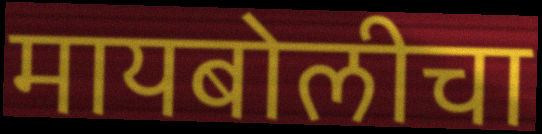
मायबोलीचा